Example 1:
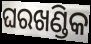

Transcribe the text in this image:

ଘରଖଣ୍ଡିକ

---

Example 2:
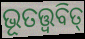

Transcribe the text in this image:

ଭୂତତ୍ତ୍ୱବିତ୍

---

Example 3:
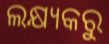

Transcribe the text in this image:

ଲକ୍ଷ୍ୟକରୁ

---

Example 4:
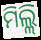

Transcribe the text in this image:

ମିଲ୍ଲି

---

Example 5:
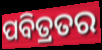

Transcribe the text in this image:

ପବିତ୍ରତର